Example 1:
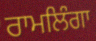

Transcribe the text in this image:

ਰਾਮਲਿੰਗਾ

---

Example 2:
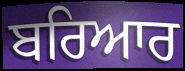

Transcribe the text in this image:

ਬਰਿਆਰ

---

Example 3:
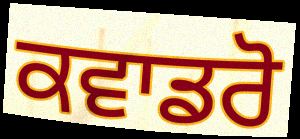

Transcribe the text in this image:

ਕਵਾਡਰੋ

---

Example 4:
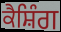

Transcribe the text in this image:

ਕੈਸ਼ਿੰਗ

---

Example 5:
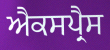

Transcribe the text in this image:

ਐਕਸਪ੍ਰੈਸ